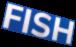
FISH